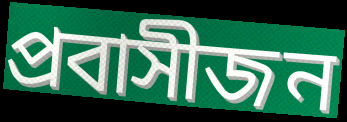
প্রবাসীজন